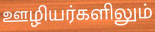
ஊழியர்களிலும்